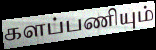
களப்பணியும்